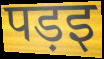
पड़इ